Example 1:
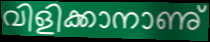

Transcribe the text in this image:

വിളിക്കാനാണു്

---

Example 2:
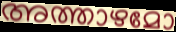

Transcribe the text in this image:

അത്താഴമോ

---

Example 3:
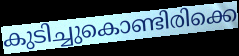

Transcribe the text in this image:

കുടിച്ചുകൊണ്ടിരിക്കെ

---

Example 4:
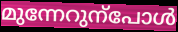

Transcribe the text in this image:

മുന്നേറുന്പോൾ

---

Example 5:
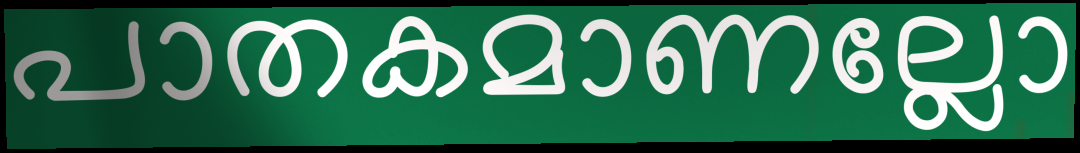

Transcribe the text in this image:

പാതകമാണല്ലോ